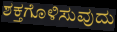
ಶಕ್ತಗೊಳಿಸುವುದು